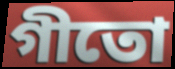
গীতো